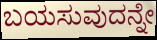
ಬಯಸುವುದನ್ನೇ